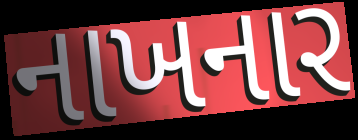
નાખનાર